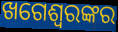
ଖଗେଶ୍ୱରଙ୍କର